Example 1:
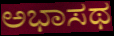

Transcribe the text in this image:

ಅಭಾಸಥ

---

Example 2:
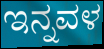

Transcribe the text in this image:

ಇನ್ನವಳ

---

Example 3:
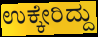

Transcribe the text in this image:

ಉಕ್ಕೇರಿದ್ದು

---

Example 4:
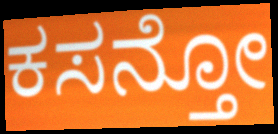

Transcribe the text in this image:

ಕಸನ್ತೋ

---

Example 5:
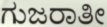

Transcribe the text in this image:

ಗುಜರಾತೀ